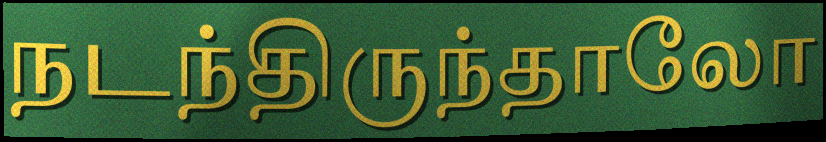
நடந்திருந்தாலோ